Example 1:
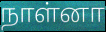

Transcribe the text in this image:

நாள்னா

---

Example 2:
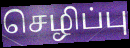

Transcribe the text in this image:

செழிப்பு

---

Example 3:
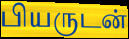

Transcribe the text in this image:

பியருடன்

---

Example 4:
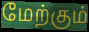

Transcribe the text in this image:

மேற்கும்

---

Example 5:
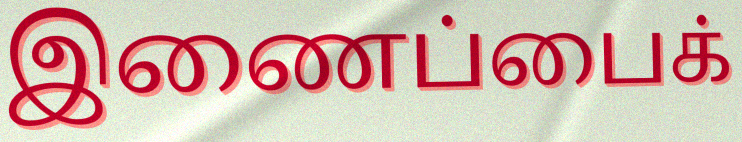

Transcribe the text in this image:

இணைப்பைக்